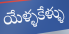
యేళ్ళకేళ్ళు